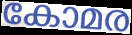
കോമര